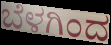
ಬೆಳಗಿಂದ